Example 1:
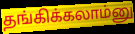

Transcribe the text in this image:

தங்கிக்கலாம்னு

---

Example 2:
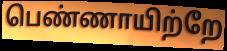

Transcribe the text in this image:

பெண்ணாயிற்றே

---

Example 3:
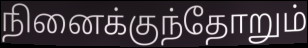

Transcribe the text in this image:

நினைக்குந்தோறும்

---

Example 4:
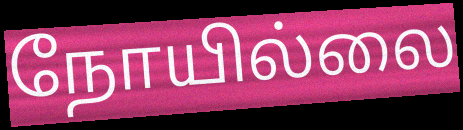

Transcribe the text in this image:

நோயில்லை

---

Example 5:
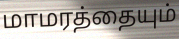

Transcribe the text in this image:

மாமரத்தையும்